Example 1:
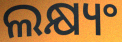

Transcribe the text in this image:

ଲକ୍ଷ୍ୟଂ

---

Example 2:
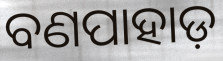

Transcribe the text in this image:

ବଣପାହାଡ଼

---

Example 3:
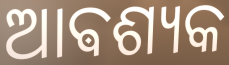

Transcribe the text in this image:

ଆଵଶ୍ୟକ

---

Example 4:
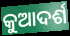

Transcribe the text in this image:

କୁଆଦର୍ଶ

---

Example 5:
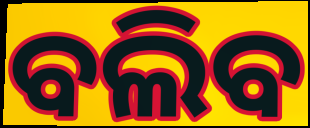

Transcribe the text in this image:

ବଲିବ